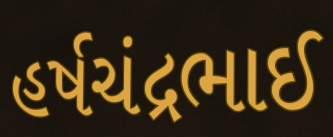
હર્ષચંદ્રભાઈ